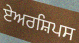
ਏਅਰਸ਼ਿਪਸ